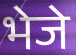
भेजे